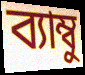
ব্যাম্বু